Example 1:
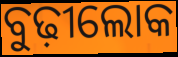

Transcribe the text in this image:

ବୁଢ଼ୀଲୋକ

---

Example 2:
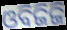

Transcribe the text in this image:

ଓବିଜିଜି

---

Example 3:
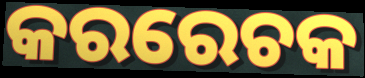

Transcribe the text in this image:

କରରେଚକ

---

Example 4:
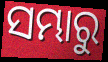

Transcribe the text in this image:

ସମ୍ଭାରୁ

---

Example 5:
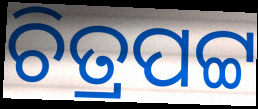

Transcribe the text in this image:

ଚିତ୍ରପଟ୍ଟ